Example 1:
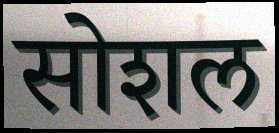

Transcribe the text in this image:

सोशल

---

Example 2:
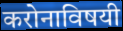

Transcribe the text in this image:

करोनाविषयी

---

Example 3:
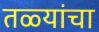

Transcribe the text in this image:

तळ्यांचा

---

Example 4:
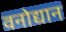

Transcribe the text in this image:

वनोद्यान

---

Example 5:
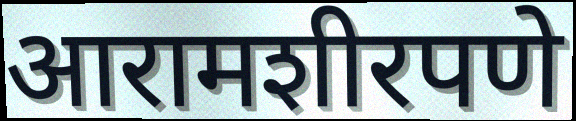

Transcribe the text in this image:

आरामशीरपणे